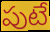
పుటే